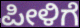
ಪೀಳಿಗೆ